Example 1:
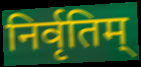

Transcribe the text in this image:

निर्वृतिम्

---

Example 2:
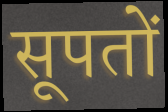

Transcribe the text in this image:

सूपतों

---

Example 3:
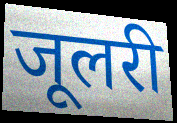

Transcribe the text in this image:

जूलरी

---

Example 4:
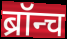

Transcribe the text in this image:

ब्रॉन्च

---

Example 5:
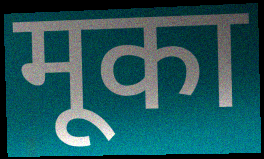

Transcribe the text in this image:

मूका